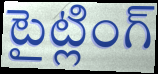
టైట్లింగ్